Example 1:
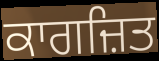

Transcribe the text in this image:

ਕਾਗਜ਼ਿਤ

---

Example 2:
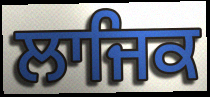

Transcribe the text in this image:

ਲਾਜਿਕ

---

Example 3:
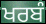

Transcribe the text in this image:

ਖਰਬੰ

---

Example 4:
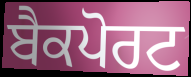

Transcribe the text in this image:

ਬੈਕਪੋਰਟ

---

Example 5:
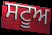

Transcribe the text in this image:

ਸਟੂਅ